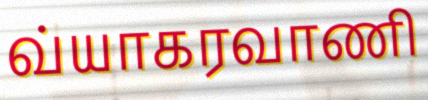
வ்யாகரவாணி